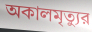
অকালমৃত্যুর